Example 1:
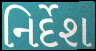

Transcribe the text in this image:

નિર્દેશ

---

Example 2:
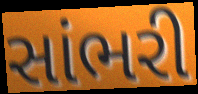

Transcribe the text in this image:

સાંભરી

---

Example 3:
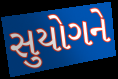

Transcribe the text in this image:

સુયોગને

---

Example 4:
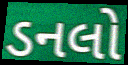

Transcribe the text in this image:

ડનલો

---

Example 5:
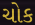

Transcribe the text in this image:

ચોક